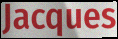
Jacques